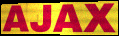
AJAX